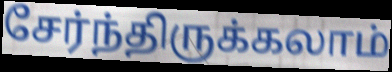
சேர்ந்திருக்கலாம்